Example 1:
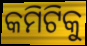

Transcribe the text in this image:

କମିଟିକୁ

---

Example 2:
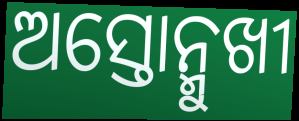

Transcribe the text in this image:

ଅସ୍ତୋନ୍ମୁଖୀ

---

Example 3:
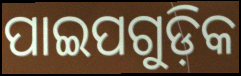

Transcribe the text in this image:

ପାଇପଗୁଡ଼ିକ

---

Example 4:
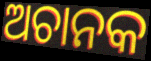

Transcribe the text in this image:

ଅଚାନକ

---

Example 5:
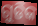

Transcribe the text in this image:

ଗୁଡିକ